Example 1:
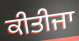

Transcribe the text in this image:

ਕੀਤੀਜਾ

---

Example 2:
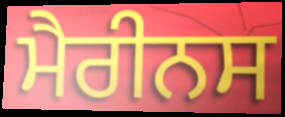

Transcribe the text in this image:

ਮੈਰੀਨਸ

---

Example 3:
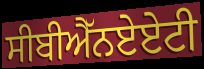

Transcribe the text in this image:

ਸੀਬੀਐੱਨਏਏਟੀ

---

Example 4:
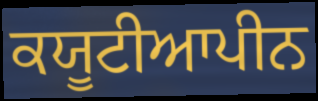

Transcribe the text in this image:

ਕਯੂਟੀਆਪੀਨ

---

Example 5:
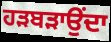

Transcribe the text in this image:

ਹੜਬੜਾਉਂਦਾ